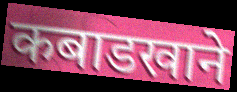
कबाडखाने